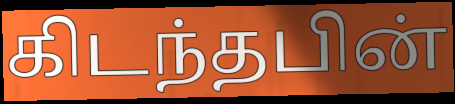
கிடந்தபின்